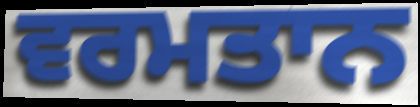
ਵਰਮਤਾਨ